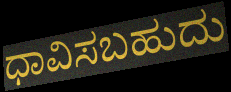
ಧಾವಿಸಬಹುದು